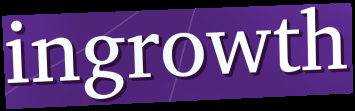
ingrowth